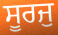
ਸੂਰਜੁ